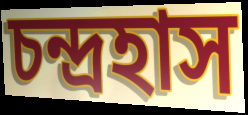
চন্দ্রহাস